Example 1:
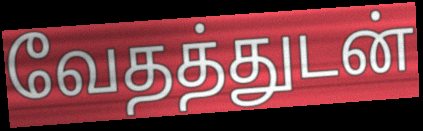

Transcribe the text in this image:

வேதத்துடன்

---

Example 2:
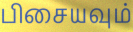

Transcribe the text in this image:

பிசையவும்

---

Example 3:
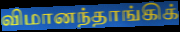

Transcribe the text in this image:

விமானந்தாங்கிக்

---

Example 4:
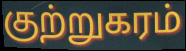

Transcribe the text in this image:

குற்றுகரம்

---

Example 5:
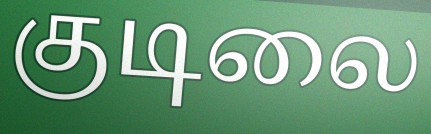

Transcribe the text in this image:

குடிலை